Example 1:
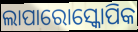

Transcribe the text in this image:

ଲାପାରୋସ୍କୋପିକ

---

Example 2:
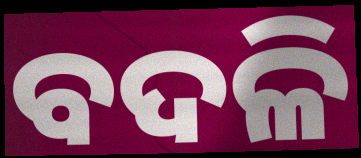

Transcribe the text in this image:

ବଦଳି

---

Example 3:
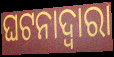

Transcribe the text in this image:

ଘଟନାଦ୍ୱାରା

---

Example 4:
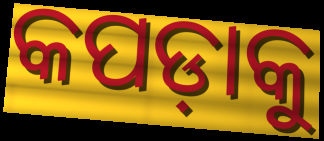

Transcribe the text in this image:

କପଡ଼ାକୁ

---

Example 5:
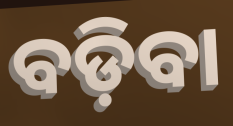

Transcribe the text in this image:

ବଡ଼ିବା